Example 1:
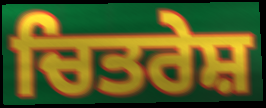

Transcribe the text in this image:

ਚਿਤਰੇਸ਼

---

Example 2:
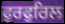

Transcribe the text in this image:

ਫੁਰਫੁਰਿਲ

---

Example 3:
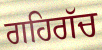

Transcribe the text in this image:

ਗਹਿਗੱਚ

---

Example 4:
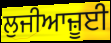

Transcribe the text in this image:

ਲੁਜੀਆਜ਼ੂਈ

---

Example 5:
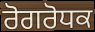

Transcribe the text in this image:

ਰੋਗਰੋਧਕ